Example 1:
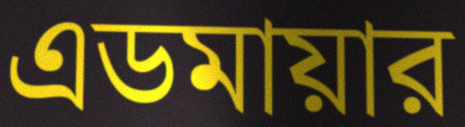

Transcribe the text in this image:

এডমায়ার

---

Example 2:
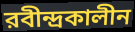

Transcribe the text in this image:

রবীন্দ্রকালীন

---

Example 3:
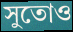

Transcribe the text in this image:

সুতোও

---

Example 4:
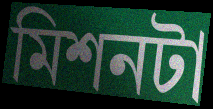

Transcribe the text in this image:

মিশনটা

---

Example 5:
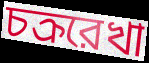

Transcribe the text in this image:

চক্ররেখা